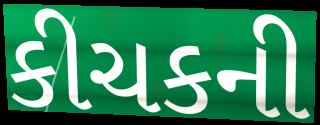
કીચકની